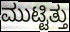
ಮುಟ್ಟಿತ್ತು